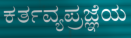
ಕರ್ತವ್ಯಪ್ರಜ್ಞೆಯ